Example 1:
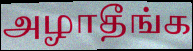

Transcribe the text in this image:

அழாதீங்க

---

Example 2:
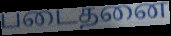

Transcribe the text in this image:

படைதனை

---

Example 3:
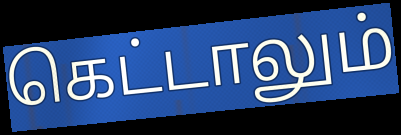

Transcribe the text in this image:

கெட்டாலும்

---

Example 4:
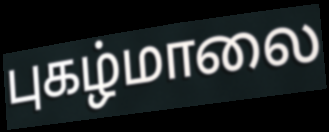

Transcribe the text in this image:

புகழ்மாலை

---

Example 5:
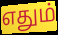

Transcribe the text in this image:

எதும்